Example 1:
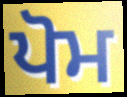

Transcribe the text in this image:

ਪੋਮ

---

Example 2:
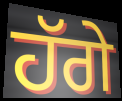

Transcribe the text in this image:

ਹੱਗੇ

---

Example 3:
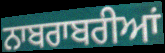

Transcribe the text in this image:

ਨਾਬਰਾਬਰੀਆਂ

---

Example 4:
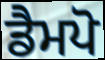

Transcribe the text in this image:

ਡੈਮਪੋ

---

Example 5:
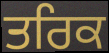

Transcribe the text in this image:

ਤਰਿਕ